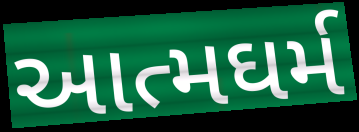
આત્મઘર્મ